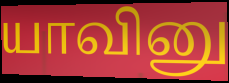
யாவினு